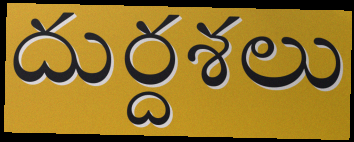
దుర్దశలు